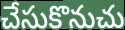
చేసుకొనుచు